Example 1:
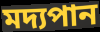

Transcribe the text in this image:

মদ্যপান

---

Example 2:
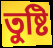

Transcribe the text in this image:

তুষ্টি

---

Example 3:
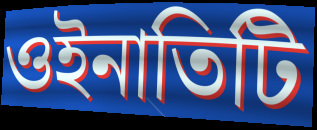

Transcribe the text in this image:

ওইনাতিটি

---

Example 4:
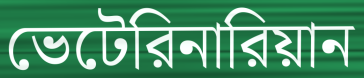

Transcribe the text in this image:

ভেটেরিনারিয়ান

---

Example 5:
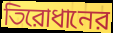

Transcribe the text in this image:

তিরোধানের